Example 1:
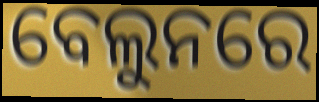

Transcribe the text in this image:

ବେଲୁନରେ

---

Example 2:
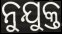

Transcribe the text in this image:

ନୁଯୁକ୍ତ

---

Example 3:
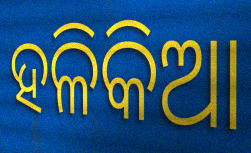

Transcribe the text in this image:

ହଳିକିଆ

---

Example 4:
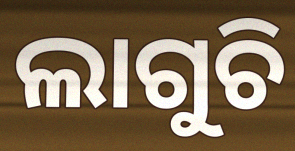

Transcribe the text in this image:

ଲାଗୁଚି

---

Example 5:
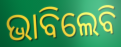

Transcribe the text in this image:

ଭାବିଲେବି